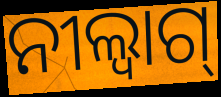
ନୀଲ୍ବାଗ୍